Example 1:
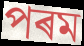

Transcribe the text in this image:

পৰম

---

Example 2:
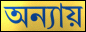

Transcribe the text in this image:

অন্যায়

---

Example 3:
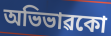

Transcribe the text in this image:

অভিভাৱকো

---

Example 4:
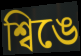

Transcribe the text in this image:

শ্বিঙে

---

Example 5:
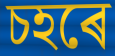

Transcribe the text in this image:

চহৰে